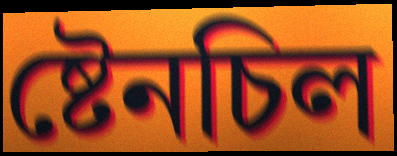
ষ্টেনচিল